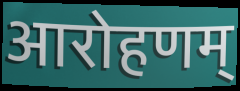
आरोहणम्